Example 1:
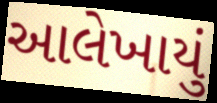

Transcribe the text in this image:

આલેખાયું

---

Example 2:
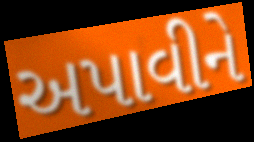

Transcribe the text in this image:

અપાવીને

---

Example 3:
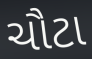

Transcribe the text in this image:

ચૌટા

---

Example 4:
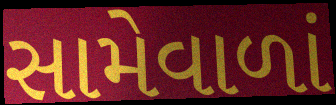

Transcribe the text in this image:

સામેવાળાં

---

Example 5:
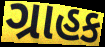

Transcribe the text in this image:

ગ્રાહક